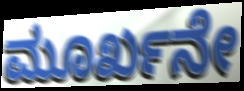
ಮೂರ್ಖನೇ